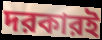
দরকারই